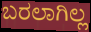
ಬರಲಾಗಿಲ್ಲ